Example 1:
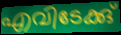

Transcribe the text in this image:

എവിടേക്കു്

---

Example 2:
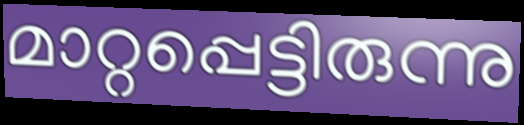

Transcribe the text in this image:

മാറ്റപ്പെട്ടിരുന്നു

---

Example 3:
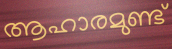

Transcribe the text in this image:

ആഹാരമുണ്ട്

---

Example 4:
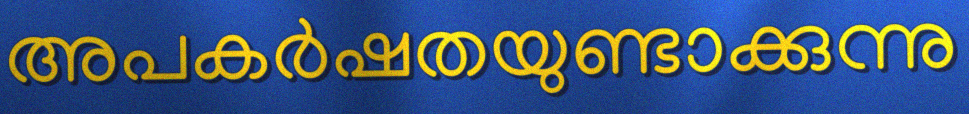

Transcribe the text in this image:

അപകർഷതയുണ്ടാക്കുന്നു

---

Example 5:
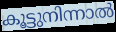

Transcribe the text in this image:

കൂട്ടുനിന്നാൽ